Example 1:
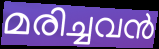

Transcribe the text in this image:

മരിച്ചവൻ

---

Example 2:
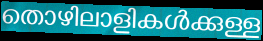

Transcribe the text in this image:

തൊഴിലാളികൾക്കുള്ള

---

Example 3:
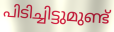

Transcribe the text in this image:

പിടിച്ചിട്ടുമുണ്ട്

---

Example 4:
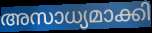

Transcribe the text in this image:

അസാധ്യമാക്കി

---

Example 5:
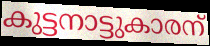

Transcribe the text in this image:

കുട്ടനാട്ടുകാരന്